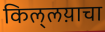
किल्लय़ाचा